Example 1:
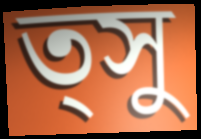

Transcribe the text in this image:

ত্সু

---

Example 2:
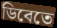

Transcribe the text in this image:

ডিবেতে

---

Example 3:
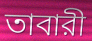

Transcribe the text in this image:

তাবারী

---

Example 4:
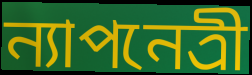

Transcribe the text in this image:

ন্যাপনেত্রী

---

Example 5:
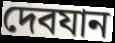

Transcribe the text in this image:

দেবযান